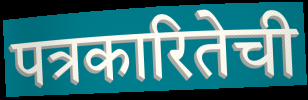
पत्रकारितेची